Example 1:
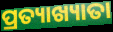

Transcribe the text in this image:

ପ୍ରତ୍ୟାଖ୍ୟାତା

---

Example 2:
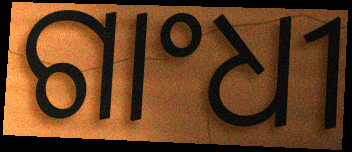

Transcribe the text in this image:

ଗାଂଧୀ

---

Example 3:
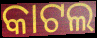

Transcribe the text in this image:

କାଟଲ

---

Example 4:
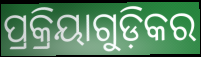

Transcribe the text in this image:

ପ୍ରକ୍ରିୟାଗୁଡ଼ିକର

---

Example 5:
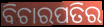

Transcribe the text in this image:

ବିଚାରପତିର